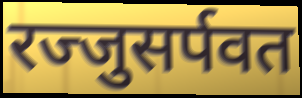
रज्जुसर्पवत